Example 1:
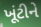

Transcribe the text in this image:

ખૂંટીને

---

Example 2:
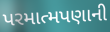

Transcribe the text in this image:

પરમાત્મપણાની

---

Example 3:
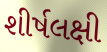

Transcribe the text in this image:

શીર્ષલક્ષી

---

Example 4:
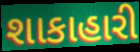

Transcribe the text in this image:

શાકાહારી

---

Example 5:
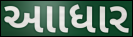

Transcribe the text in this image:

આાધાર